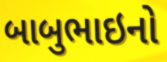
બાબુભાઇનો